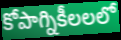
కోపాగ్నికీలలలో